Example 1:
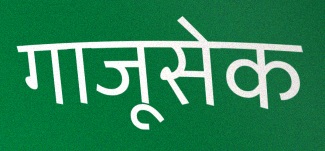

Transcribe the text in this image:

गाजूसेक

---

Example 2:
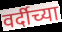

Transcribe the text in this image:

वर्दीच्या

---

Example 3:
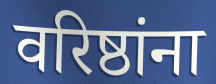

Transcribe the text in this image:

वरिष्ठांना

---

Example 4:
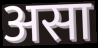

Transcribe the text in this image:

असा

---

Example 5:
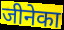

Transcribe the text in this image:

जीनेका